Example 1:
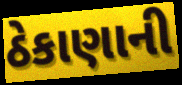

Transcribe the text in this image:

ઠેકાણાની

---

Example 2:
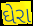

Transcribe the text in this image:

ઘેરા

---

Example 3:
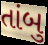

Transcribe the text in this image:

તાંબુ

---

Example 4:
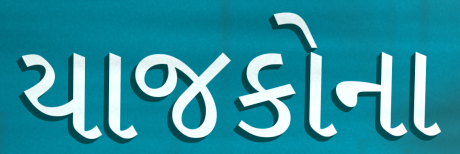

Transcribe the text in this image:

યાજકોના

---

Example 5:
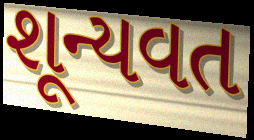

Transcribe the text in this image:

શૂન્યવત